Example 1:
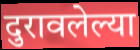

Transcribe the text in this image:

दुरावलेल्या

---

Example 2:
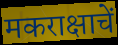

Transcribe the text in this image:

मकराक्षाचें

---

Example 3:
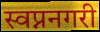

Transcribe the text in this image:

स्वप्ननगरी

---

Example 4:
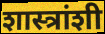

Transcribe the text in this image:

शास्त्रांशी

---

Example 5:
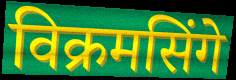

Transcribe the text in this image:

विक्रमसिंगे